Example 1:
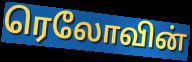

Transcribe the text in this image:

ரெலோவின்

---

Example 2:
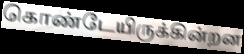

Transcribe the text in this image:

கொண்டேயிருக்கின்றன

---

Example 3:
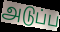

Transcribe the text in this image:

அடுப்ப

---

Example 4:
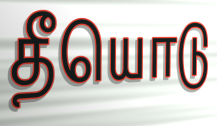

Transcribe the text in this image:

தீயொடு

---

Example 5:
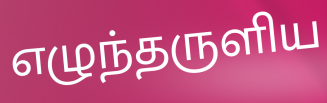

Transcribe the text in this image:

எழுந்தருளிய